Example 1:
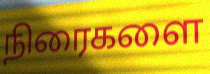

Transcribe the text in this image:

நிரைகளை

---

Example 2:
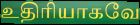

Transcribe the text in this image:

உதிரியாகவே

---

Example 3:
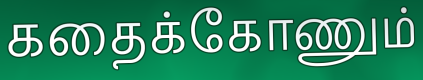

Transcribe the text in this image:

கதைக்கோணும்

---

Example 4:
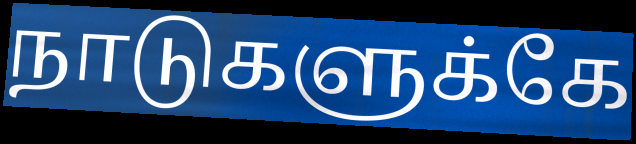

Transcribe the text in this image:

நாடுகளுக்கே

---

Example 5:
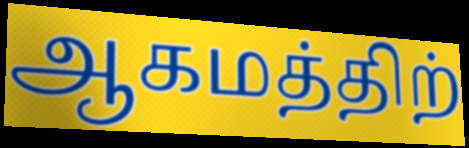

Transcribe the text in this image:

ஆகமத்திற்